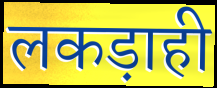
लकड़ाही